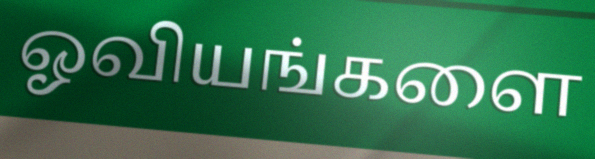
ஓவியங்களை